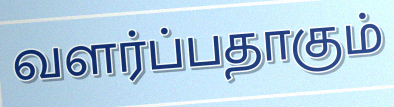
வளர்ப்பதாகும்